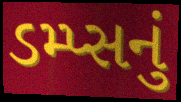
ડમ્પ્સનું